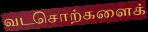
வடசொற்களைக்